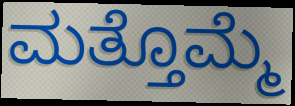
ಮತ್ತೊಮ್ಮೆ